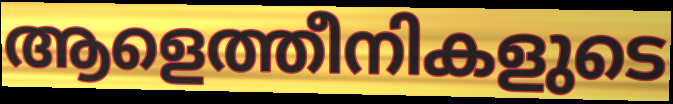
ആളെത്തീനികളുടെ